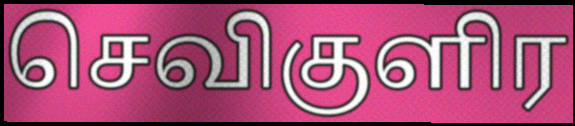
செவிகுளிர